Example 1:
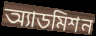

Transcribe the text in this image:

অ্যাডমিশন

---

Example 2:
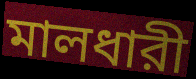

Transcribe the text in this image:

মালধারী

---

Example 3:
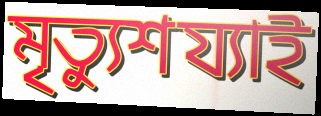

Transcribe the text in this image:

মৃত্যুশয্যাই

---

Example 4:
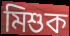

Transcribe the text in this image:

মিশুক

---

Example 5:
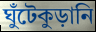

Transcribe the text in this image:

ঘুঁটেকুড়ানি